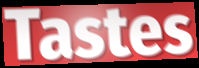
Tastes